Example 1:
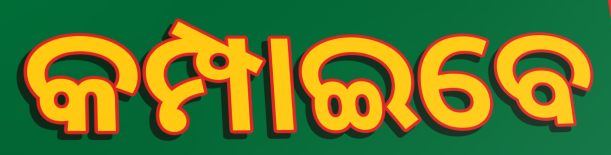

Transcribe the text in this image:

କମ୍ପାଇବେ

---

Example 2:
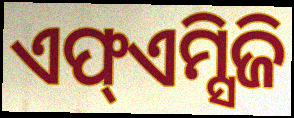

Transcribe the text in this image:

ଏଫ୍ଏମ୍ସିଜି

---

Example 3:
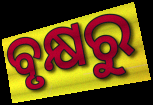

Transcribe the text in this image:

ବୃକ୍ଷରୁ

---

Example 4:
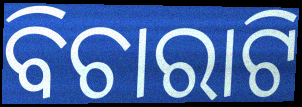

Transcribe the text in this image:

ବିଚାରାଟି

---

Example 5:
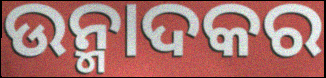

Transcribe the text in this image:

ଉନ୍ମାଦକର